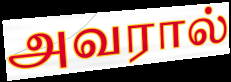
அவரால்